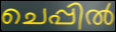
ചെപ്പിൽ